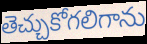
తెచ్చుకోగలిగాను